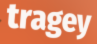
tragey